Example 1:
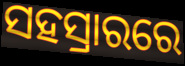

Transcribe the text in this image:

ସହସ୍ରାରରେ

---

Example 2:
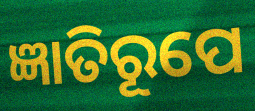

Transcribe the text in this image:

ଜ୍ଞାତିରୂପେ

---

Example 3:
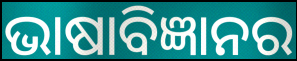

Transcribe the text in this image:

ଭାଷାବିଜ୍ଞାନର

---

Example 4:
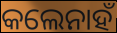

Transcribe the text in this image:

କଲେନାହଁ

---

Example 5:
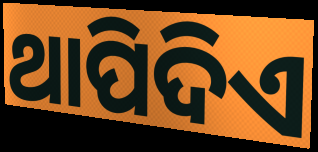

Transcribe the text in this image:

ଥାପିଦିଏ